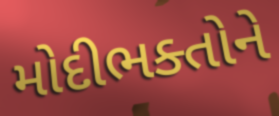
મોદીભક્તોને